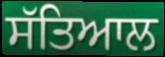
ਸੱਤਿਆਲ